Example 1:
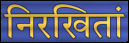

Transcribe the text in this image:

निरखितां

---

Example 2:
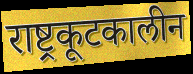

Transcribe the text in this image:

राष्ट्रकूटकालीन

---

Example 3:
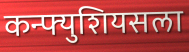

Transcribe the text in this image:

कन्फ्युशियसला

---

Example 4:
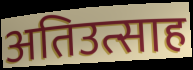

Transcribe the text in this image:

अतिउत्साह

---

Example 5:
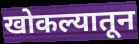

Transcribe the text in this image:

खोकल्यातून